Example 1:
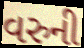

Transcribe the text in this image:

વરુની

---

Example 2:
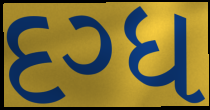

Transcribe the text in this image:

દગ્ધ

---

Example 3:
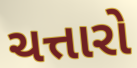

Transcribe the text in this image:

ચત્તારો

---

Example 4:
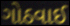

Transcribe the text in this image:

ગોઠવાઈ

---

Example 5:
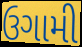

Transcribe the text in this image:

ઉગામી